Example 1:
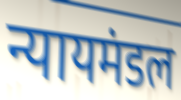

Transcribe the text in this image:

न्यायमंडल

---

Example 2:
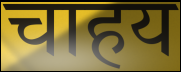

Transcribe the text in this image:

चाहय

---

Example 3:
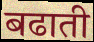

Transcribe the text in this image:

बढाती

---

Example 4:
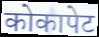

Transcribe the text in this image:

कोकापेट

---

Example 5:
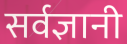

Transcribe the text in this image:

सर्वज्ञानी